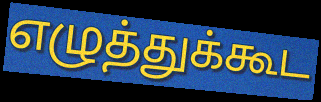
எழுத்துக்கூட